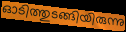
ഓടിത്തുടങ്ങിയിരുന്നു